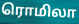
ரொமிலா